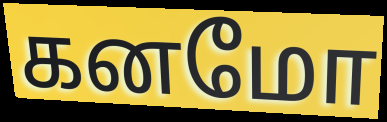
கனமோ